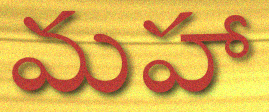
మహా